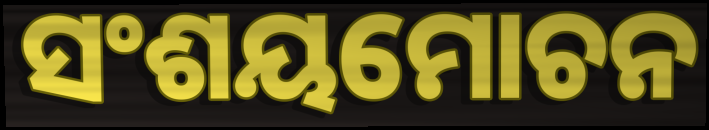
ସଂଶୟମୋଚନ